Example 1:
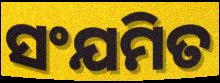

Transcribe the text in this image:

ସଂଯମିତ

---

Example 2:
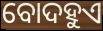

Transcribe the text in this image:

ବୋଦହୁଏ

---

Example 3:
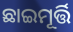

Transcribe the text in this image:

ଛାଇମୂର୍ତ୍ତି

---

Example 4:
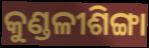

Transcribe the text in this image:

କୁଣ୍ଡଳୀଶିଙ୍ଗା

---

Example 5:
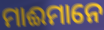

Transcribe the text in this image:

ମାଈମାନେ